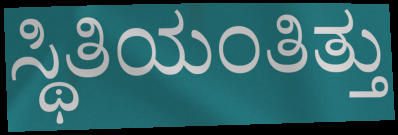
ಸ್ಥಿತಿಯಂತಿತ್ತು